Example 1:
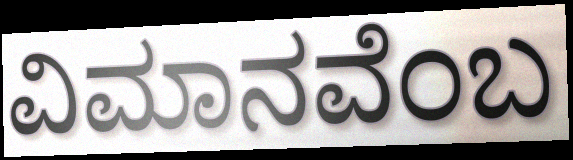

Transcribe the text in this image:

ವಿಮಾನವೆಂಬ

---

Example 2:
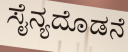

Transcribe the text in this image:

ಸೈನ್ಯದೊಡನೆ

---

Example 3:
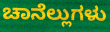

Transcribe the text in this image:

ಚಾನೆಲ್ಲುಗಳು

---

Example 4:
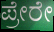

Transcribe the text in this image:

ಪ್ರೇರೇ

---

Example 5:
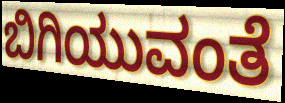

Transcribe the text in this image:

ಬಿಗಿಯುವಂತೆ